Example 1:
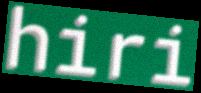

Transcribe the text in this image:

hiri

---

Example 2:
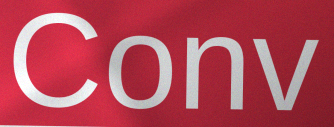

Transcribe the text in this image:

Conv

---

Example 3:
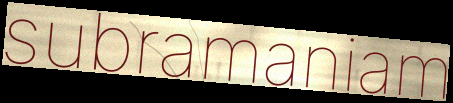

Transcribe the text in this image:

subramaniam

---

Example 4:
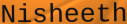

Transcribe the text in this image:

Nisheeth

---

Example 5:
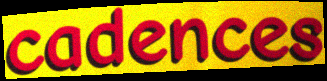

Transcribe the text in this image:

cadences